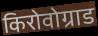
किरोवोग्राड